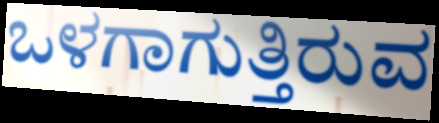
ಒಳಗಾಗುತ್ತಿರುವ